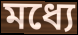
মধ্যে